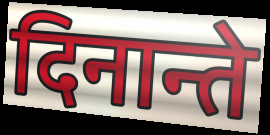
दिनान्ते